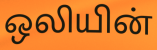
ஒலியின்